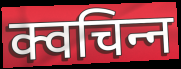
क्वचिन्न